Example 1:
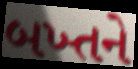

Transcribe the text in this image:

બખ્તને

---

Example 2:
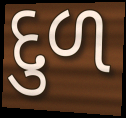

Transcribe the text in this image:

દુળ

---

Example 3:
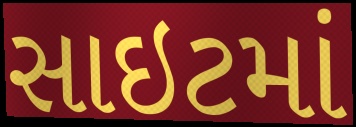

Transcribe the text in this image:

સાઇટમાં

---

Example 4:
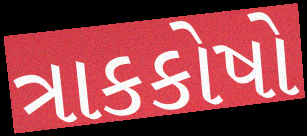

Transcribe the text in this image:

ત્રાકકોષો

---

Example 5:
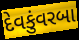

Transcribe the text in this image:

દેવકુંવરબા